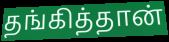
தங்கித்தான்